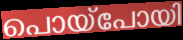
പൊയ്പോയി